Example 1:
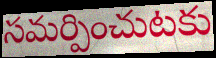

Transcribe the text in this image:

సమర్పించుటకు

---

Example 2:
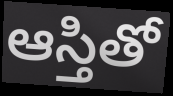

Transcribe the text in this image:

ఆస్తితో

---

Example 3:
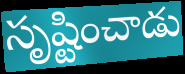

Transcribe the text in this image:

సృష్టించాడు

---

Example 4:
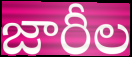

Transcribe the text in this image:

జారీల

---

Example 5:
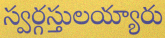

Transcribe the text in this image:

స్వర్గస్తులయ్యారు